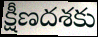
క్షీణదశకు